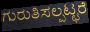
ಗುರುತಿಸಲ್ಪಟ್ಟರೆ